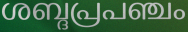
ശബ്ദപ്രപഞ്ചം